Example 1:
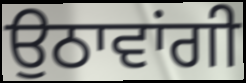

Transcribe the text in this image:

ਉਠਾਵਾਂਗੀ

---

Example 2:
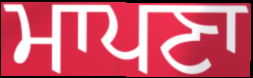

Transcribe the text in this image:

ਮਾਪਣਾ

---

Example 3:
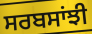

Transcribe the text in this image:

ਸਰਬਸਾਂਝੀ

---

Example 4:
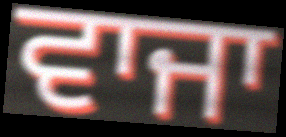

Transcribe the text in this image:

ਵਾਜਾ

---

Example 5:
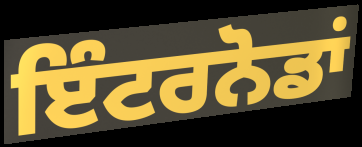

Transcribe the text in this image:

ਇੰਟਰਨੋਡਾਂ